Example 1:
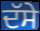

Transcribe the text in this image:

ਦੱਸੇ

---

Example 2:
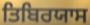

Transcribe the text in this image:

ਤਿਬਿਰਯਾਸ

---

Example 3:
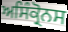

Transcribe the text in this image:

ਅਸਿੰਕ੍ਰੋਨਸ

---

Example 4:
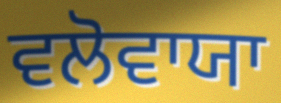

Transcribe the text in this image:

ਵਲੋਵਾਯਾ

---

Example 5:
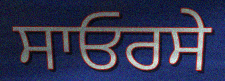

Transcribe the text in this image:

ਸਾਓਰਸੇ